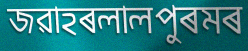
জৱাহৰলালপুৰমৰ